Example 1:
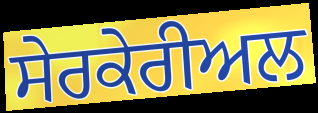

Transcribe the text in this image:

ਸੇਰਕੇਰੀਅਲ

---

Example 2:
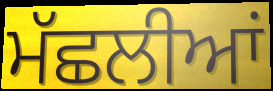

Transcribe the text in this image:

ਮੱਛਲੀਆਂ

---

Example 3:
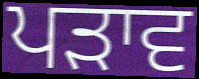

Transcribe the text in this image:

ਪੜਾਵ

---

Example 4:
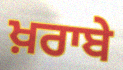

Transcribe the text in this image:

ਖ਼ਰਾਬੇ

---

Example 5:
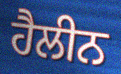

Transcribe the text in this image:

ਹੈਲੀਨ